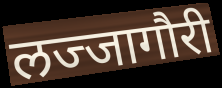
लज्जागौरी